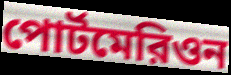
পোর্টমেরিওন